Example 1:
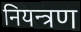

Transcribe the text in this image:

नियन्त्रण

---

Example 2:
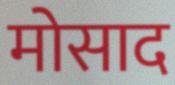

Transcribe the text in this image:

मोसाद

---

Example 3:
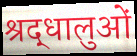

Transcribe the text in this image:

श्रद्धालुओं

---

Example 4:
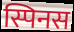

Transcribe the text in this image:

स्पिनस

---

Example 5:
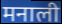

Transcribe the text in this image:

मनाली